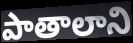
పాతాలాని